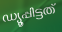
ഡ്യൂപ്പിട്ടത്